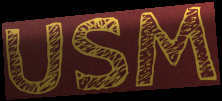
USM